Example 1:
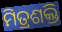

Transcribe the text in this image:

ମିତ୍ରଶକ୍ତି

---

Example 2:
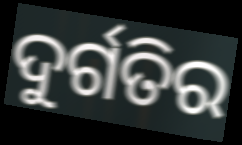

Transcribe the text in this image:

ଦୁର୍ଗତିର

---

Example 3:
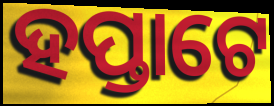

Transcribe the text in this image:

ହପ୍ତାଟେ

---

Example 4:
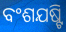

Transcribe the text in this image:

ବଂଶଯଷ୍ଟି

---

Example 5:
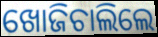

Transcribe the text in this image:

ଖୋଜିଚାଲିଲେ